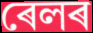
ৰেলৰ